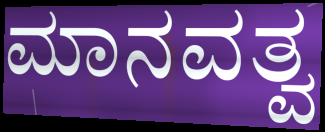
ಮಾನವತ್ವ